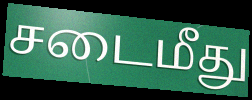
சடைமீது